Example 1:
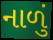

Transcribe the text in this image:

નાળું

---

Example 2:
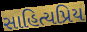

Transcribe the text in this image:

સાહિત્યપ્રિય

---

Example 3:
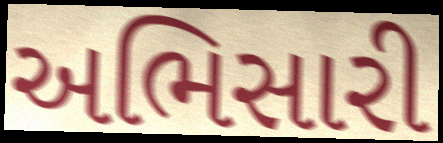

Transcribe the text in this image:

અભિસારી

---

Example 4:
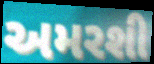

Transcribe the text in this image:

અમરશી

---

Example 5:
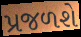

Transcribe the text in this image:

પ્રજળશે